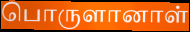
பொருளானாள்